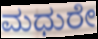
ಮಧುರೇ